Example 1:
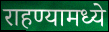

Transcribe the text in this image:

राहण्यामध्ये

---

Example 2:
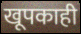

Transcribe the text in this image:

खूपकाही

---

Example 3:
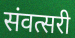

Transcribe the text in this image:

संवत्सरी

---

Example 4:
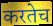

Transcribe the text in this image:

करतेच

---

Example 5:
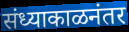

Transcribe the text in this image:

संध्याकाळनंतर